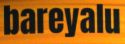
bareyalu